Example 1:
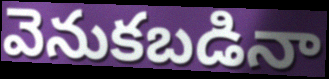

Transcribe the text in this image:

వెనుకబడినా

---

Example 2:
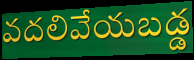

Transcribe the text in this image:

వదలివేయబడ్డ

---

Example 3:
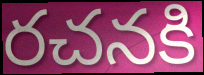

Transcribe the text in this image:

రచనకి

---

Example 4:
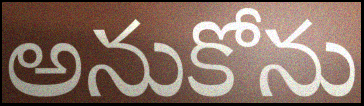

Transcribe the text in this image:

అనుకోను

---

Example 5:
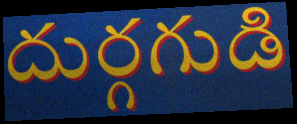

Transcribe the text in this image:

దుర్గగుడి